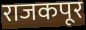
राजकपूर